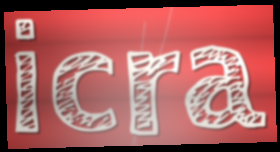
icra